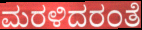
ಮರಳಿದರಂತೆ